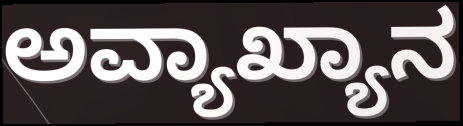
ಅವ್ಯಾಖ್ಯಾನ